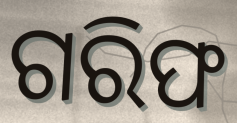
ଗରିଫ